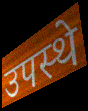
उपस्थे